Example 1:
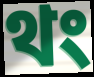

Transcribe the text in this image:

থং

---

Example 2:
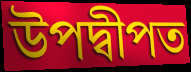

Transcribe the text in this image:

উপদ্বীপত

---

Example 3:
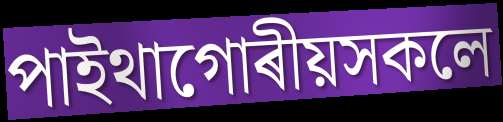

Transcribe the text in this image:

পাইথাগোৰীয়সকলে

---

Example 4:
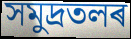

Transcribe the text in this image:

সমুদ্ৰতলৰ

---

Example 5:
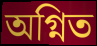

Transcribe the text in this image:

অগ্নিত